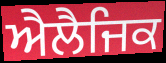
ਐਲੈਜਿਕ